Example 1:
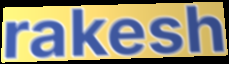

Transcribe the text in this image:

rakesh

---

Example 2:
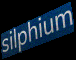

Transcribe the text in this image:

silphium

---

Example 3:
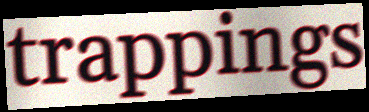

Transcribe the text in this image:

trappings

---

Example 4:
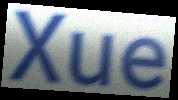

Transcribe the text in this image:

Xue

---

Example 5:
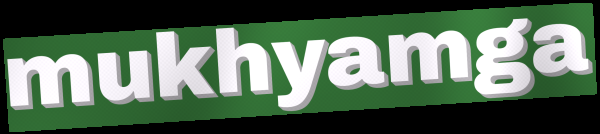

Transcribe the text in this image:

mukhyamga